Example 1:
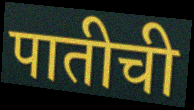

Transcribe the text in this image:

पातीची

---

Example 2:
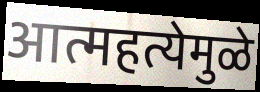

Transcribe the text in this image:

आत्महत्येमुळे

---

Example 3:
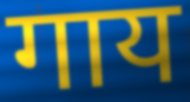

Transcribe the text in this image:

गाय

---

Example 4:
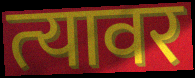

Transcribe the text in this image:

त्‍यावर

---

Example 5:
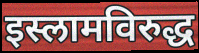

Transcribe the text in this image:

इस्लामविरुद्ध